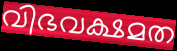
വിഭവക്ഷമത